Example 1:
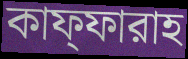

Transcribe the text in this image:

কাফ্ফারাহ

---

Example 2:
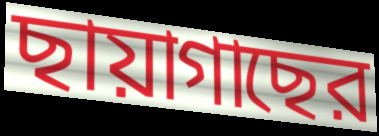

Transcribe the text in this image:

ছায়াগাছের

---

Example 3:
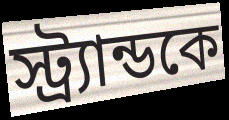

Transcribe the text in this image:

স্ট্র্যান্ডকে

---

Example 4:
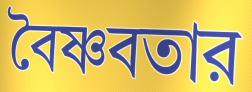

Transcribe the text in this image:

বৈষ্ণবতার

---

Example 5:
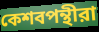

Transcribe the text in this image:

কেশবপন্থীরা